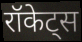
रॉकेट्स